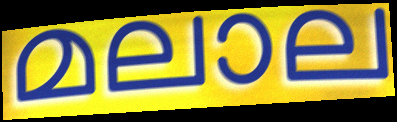
മലാല